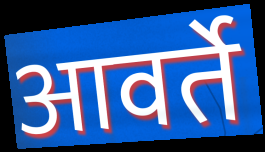
आवर्ते